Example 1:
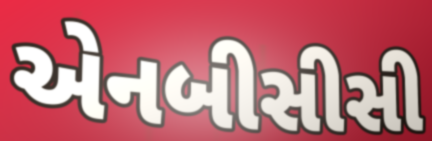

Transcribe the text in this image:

એનબીસીસી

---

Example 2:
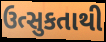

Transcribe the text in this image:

ઉત્સુકતાથી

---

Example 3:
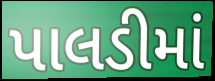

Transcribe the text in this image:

પાલડીમાં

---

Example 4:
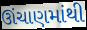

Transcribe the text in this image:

ઊંચાણમાંથી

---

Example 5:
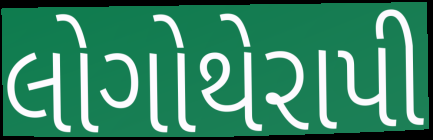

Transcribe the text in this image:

લોગોથેરાપી